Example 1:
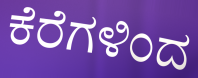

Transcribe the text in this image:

ಕೆರೆಗಳಿಂದ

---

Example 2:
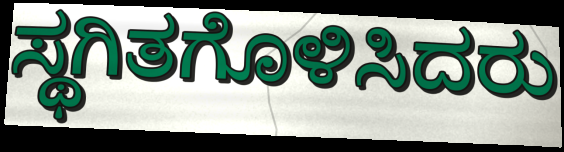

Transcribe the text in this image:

ಸ್ಥಗಿತಗೊಳಿಸಿದರು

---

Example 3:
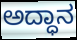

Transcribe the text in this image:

ಅದ್ಧಾನ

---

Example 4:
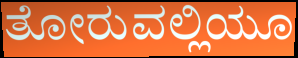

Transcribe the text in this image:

ತೋರುವಲ್ಲಿಯೂ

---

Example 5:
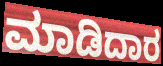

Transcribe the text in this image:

ಮಾಡಿದಾರ